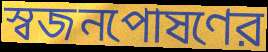
স্বজনপোষণের